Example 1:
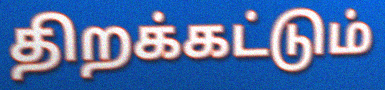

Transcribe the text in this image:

திறக்கட்டும்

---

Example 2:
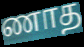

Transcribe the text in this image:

ணாத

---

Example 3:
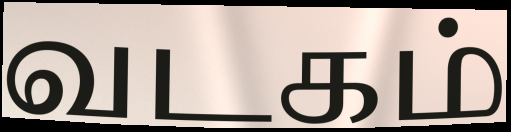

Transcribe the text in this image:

வடகம்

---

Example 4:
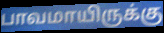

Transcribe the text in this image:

பாவமாயிருக்கு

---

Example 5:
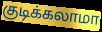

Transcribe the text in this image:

குடிக்கலாமா